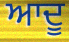
ਆਦੂ